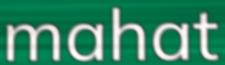
mahat